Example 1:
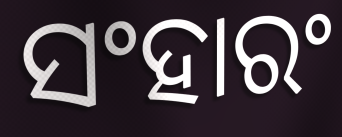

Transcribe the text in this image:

ସଂହାରଂ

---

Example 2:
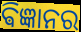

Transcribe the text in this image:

ଵିଜ୍ଞାନର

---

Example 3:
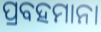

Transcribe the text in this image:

ପ୍ରବହମାନା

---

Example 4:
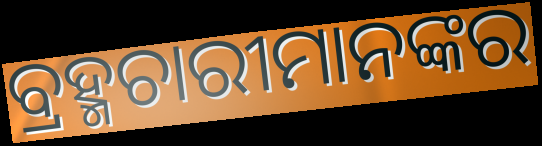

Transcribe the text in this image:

ବ୍ରହ୍ମଚାରୀମାନଙ୍କର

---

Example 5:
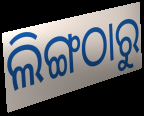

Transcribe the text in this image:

ଲିଙ୍ଗଠାରୁ